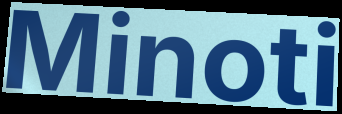
Minoti